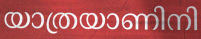
യാത്രയാണിനി